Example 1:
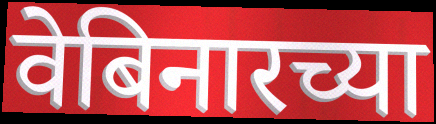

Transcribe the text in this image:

वेबिनारच्या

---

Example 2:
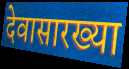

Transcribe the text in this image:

देवासारख्या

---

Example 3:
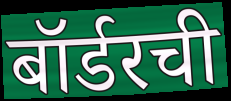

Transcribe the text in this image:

बॉर्डरची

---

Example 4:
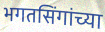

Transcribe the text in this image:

भगतसिंगांच्या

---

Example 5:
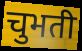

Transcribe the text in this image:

चुभती